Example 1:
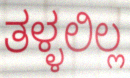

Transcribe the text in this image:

ತಳ್ಳಲಿಲ್ಲ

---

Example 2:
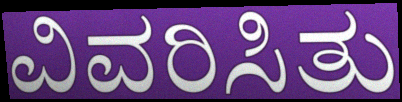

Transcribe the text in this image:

ವಿವರಿಸಿತು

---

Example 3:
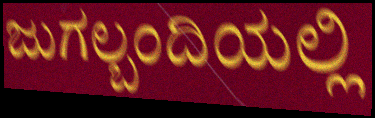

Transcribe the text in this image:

ಜುಗಲ್ಬಂದಿಯಲ್ಲಿ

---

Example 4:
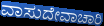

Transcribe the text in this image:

ವಾಸುದೇವಾಚಾರಿ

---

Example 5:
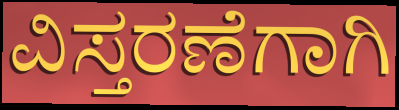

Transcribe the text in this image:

ವಿಸ್ತರಣೆಗಾಗಿ